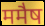
ममैष